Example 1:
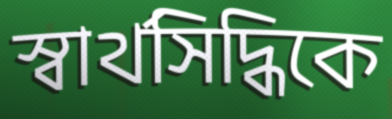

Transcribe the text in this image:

স্বার্থসিদ্ধিকে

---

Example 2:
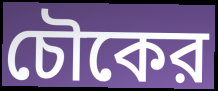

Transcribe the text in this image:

চৌকের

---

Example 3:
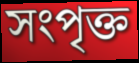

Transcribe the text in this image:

সংপৃক্ত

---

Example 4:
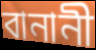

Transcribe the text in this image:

বানানী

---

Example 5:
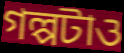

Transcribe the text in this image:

গল্পটাও